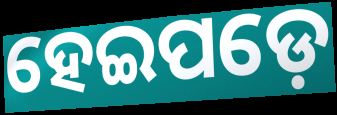
ହେଇପଡ଼େ